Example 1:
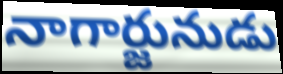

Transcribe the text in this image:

నాగార్జునుడు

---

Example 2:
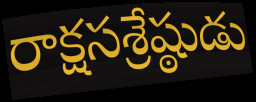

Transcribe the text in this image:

రాక్షసశ్రేష్ఠుడు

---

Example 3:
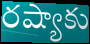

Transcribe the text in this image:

రష్యాకు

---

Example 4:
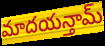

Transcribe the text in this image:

మాదయన్తామ్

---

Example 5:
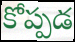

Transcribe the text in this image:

కోప్పడ